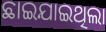
ଛାଇଯାଇଥିଲା